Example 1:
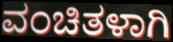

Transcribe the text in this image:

ವಂಚಿತಳಾಗಿ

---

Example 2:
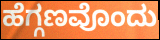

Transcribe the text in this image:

ಹೆಗ್ಗಣವೊಂದು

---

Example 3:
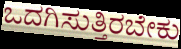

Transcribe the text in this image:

ಒದಗಿಸುತ್ತಿರಬೇಕು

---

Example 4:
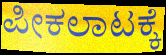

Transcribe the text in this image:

ಪೀಕಲಾಟಕ್ಕೆ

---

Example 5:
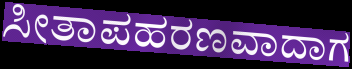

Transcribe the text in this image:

ಸೀತಾಪಹರಣವಾದಾಗ